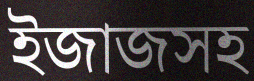
ইজাজসহ